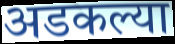
अडकल्या